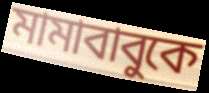
মামাবাবুকে